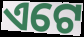
ଏଟେ